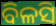
ବିଳସି